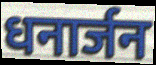
धनार्जन